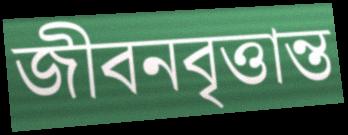
জীবনবৃত্তান্ত